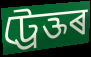
ট্ৰেক্তৰ